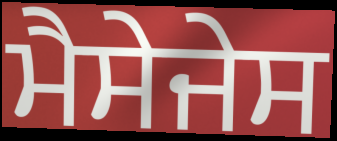
ਮੈਸੇਜੇਸ